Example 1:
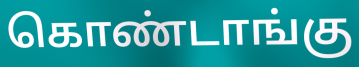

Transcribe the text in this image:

கொண்டாங்கு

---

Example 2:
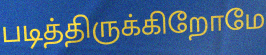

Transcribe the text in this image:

படித்திருக்கிறோமே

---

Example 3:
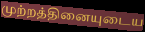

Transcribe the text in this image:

முற்றத்தினையுடைய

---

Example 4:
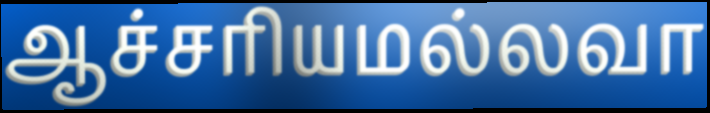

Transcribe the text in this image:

ஆச்சரியமல்லவா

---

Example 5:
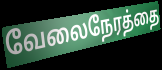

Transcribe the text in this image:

வேலைநேரத்தை